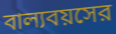
বাল্যবয়সের